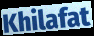
Khilafat